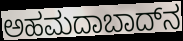
ಅಹಮದಾಬಾದ್‌ನ